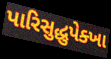
પારિસુદ્ધુપેક્ખા